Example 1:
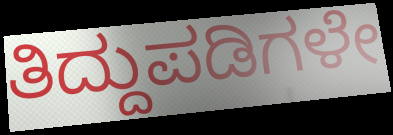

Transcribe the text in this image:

ತಿದ್ದುಪಡಿಗಳೇ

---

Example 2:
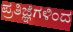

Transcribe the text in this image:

ಪ್ರತಿಜ್ಞೆಗಳಿಂದ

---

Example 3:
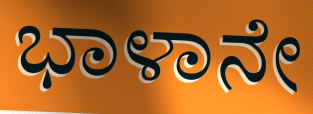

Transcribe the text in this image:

ಭಾಳಾನೇ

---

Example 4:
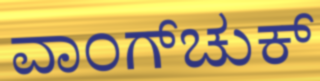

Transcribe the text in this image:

ವಾಂಗ್‌ಚುಕ್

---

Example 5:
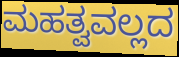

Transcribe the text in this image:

ಮಹತ್ವವಲ್ಲದ